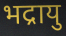
भद्रायु